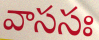
వాససః